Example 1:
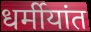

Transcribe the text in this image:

धर्मीयांत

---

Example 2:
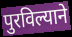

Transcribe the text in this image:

पुरविल्याने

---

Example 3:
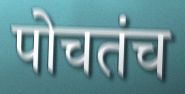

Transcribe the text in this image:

पोचतंच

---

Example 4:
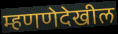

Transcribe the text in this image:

म्हणणेदेखील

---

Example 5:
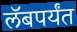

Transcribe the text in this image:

लॅबपर्यंत